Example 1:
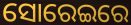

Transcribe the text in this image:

ସୋରେଇରେ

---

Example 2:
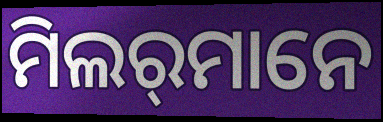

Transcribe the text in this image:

ମିଲର୍‌ମାନେ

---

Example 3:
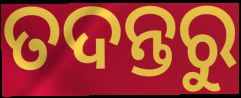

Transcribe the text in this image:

ତଦନ୍ତରୁ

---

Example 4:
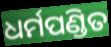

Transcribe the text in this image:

ଧର୍ମପଣ୍ଡିତ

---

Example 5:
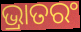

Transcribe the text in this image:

ଭ୍ରାତରଂ